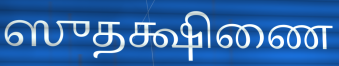
ஸுதக்ஷிணை